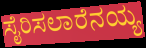
ಸೈರಿಸಲಾರೆನಯ್ಯ